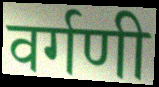
वर्गणी